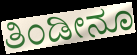
ತಿಂಡೀನೂ